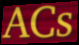
ACs